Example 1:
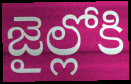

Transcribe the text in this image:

జైల్లోకి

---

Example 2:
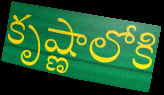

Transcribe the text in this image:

కృష్ణాలోకి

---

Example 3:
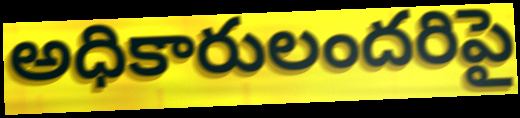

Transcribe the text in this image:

అధికారులందరిపై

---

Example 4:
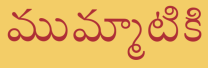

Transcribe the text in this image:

ముమ్మాటికి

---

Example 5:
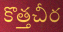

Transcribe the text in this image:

కొత్తచీర